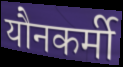
यौनकर्मी